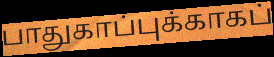
பாதுகாப்புக்காகப்